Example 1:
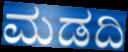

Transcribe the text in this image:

ಮಡದಿ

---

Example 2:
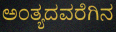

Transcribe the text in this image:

ಅಂತ್ಯದವರೆಗಿನ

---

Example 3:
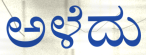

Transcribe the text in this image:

ಅಳೆದು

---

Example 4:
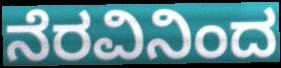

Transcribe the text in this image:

ನೆರವಿನಿಂದ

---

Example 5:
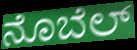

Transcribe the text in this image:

ನೊಬೆಲ್